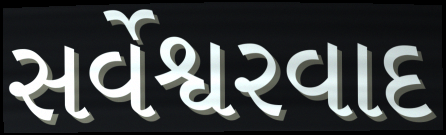
સર્વેશ્વરવાદ